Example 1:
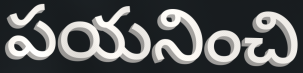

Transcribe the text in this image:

పయనించి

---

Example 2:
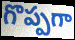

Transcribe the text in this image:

గొప్పగా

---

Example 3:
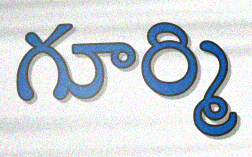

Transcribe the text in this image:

గూర్మి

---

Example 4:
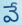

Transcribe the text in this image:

వే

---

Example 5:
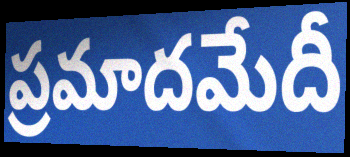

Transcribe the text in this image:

ప్రమాదమేదీ